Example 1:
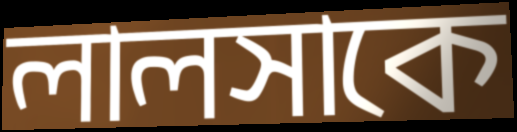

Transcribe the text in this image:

লালসাকে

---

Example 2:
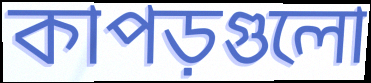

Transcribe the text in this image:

কাপড়গুলো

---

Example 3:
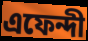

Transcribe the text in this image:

এফেন্দী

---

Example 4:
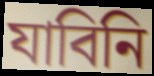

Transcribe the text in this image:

যাবিনি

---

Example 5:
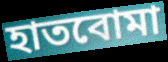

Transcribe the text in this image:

হাতবোমা